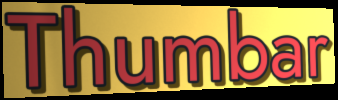
Thumbar